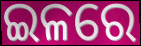
ଇଳରେ